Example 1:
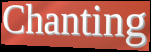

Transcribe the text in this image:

Chanting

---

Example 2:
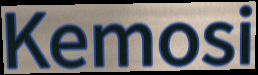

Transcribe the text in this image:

Kemosi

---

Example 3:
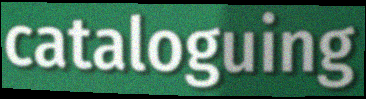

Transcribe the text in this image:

cataloguing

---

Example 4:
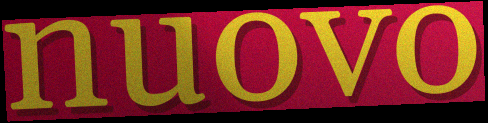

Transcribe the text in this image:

nuovo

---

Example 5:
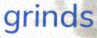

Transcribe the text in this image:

grinds